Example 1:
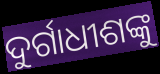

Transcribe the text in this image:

ଦୁର୍ଗାଧୀଶଙ୍କୁ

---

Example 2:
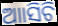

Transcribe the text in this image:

ଆାସିଚି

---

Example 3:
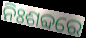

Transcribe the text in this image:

ନିଃଶବ୍ଦରେ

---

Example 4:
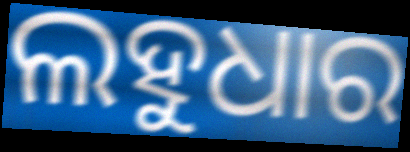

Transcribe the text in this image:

ଲହୁଧାର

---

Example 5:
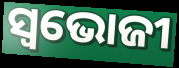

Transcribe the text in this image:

ସ୍ବଭୋଜୀ